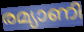
രമ്യാണി